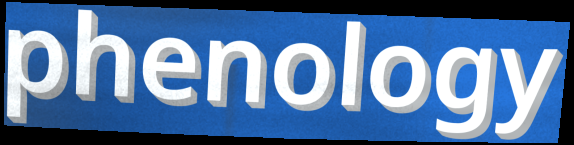
phenology